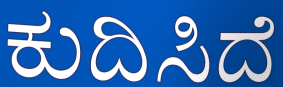
ಕುದಿಸಿದೆ